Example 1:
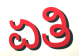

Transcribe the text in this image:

ಏತಿ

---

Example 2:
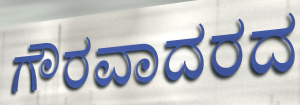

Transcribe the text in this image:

ಗೌರವಾದರದ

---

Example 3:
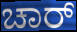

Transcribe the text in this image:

ಚಾರ್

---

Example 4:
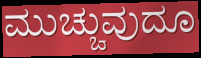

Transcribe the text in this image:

ಮುಚ್ಚುವುದೂ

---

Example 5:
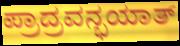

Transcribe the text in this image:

ಪ್ರಾದ್ರವನ್ಭಯಾತ್